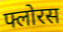
फ्लोरस